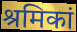
श्रमिकां